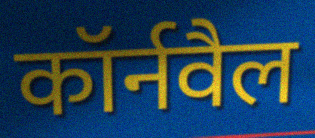
कॉर्नवैल